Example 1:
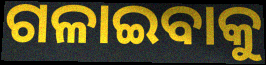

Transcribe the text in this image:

ଗଳାଇବାକୁ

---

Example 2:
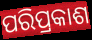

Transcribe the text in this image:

ପରିପ୍ରକାଶ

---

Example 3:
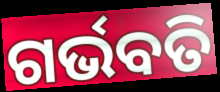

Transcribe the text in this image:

ଗର୍ଭବତି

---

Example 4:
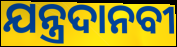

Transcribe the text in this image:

ଯନ୍ତ୍ରଦାନବୀ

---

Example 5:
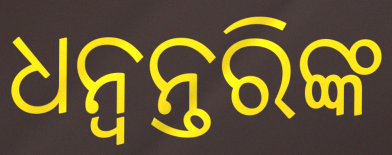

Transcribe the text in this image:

ଧନ୍ୱନ୍ତରିଙ୍କ